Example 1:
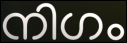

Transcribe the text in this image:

നിഗം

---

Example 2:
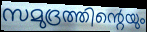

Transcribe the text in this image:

സമുദ്രത്തിന്റെയും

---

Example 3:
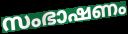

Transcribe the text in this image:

സംഭാഷണം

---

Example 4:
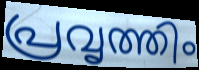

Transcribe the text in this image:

പ്രവൃത്തിം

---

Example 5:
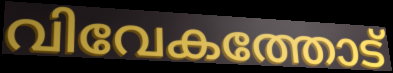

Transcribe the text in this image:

വിവേകത്തോട്